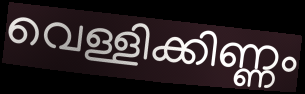
വെള്ളിക്കിണ്ണം